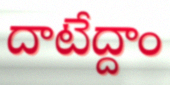
దాటేద్దాం